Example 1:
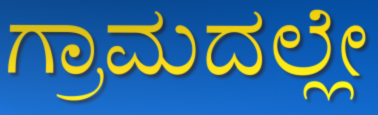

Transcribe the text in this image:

ಗ್ರಾಮದಲ್ಲೇ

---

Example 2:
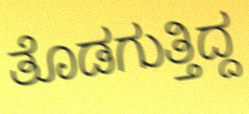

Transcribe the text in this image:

ತೊಡಗುತ್ತಿದ್ದ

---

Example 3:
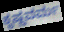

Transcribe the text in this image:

ಕೃಷ್ಣವರ್ಮ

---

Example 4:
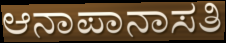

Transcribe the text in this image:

ಆನಾಪಾನಾಸತಿ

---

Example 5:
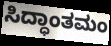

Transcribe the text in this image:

ಸಿದ್ಧಾಂತಮಂ